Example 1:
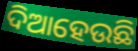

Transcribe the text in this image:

ଦିଆହେଉଛି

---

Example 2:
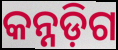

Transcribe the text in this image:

କନ୍ନଡ଼ିଗ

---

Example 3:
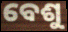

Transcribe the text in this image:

ବେଶୁ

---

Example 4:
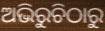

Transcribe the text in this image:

ଅଭିରୁଚିଠାରୁ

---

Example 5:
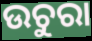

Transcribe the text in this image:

ଉଚୁରା